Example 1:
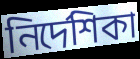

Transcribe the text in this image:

নির্দেশিকা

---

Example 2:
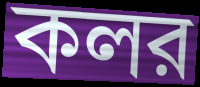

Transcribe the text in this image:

কলর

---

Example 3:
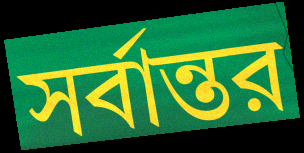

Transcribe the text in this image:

সর্বান্তর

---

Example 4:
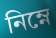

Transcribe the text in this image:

নিম্নে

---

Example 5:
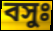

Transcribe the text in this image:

বসুঃ